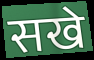
सखे